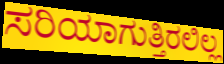
ಸರಿಯಾಗುತ್ತಿರಲಿಲ್ಲ